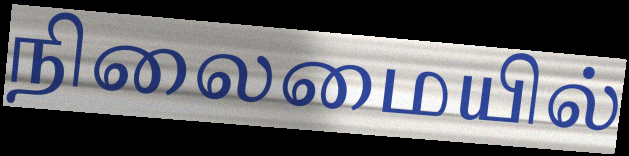
நிலைமையில்